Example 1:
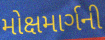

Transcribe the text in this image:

મોક્ષમાર્ગની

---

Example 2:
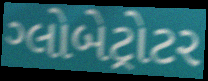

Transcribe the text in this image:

ગ્લોબેટ્રોટર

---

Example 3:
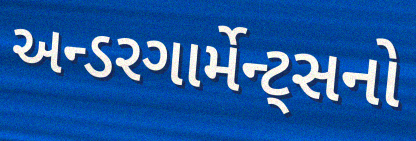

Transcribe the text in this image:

અન્ડરગાર્મેન્ટ્સનો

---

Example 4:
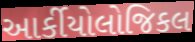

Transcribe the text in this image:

આર્કીયોલોજિકલ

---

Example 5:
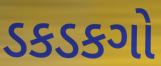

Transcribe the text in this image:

ડકડકગો